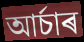
আৰ্চাৰ